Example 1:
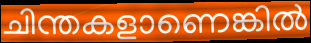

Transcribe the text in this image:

ചിന്തകളാണെങ്കിൽ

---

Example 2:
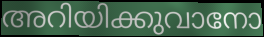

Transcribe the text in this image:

അറിയിക്കുവാനോ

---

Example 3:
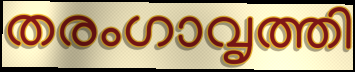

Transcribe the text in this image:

തരംഗാവൃത്തി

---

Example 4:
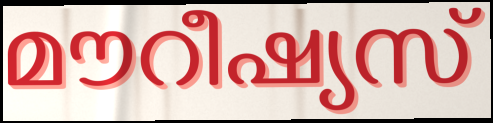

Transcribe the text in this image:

മൗറീഷ്യസ്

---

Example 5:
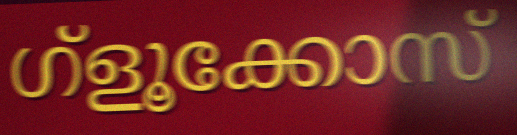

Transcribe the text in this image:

ഗ്ളൂക്കോസ്